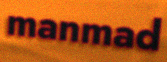
manmad